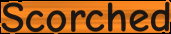
Scorched